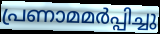
പ്രണാമമർപ്പിച്ചു